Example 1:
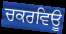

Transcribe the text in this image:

ਚਕਰਵਿਊ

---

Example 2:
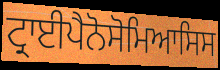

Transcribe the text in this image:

ਟ੍ਰਾਈਪੈਨੋਸੋਮਿਆਸਿਸ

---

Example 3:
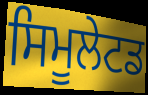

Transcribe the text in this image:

ਸਿਮੂਲੇਟਡ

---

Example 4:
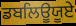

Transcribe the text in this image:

ਡਬਲਿਊਯੂਏ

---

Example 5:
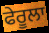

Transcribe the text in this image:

ਫੇਰੂਲਾ